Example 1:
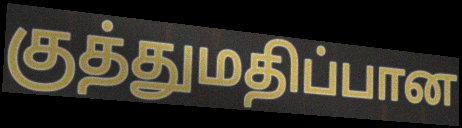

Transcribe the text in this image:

குத்துமதிப்பான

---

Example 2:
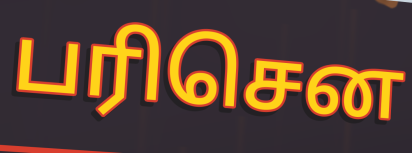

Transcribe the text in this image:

பரிசென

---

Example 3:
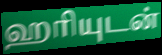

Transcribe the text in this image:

ஹரியுடன்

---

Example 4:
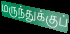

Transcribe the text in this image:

மருந்துக்குப்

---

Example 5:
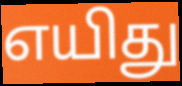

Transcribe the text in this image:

எயிது